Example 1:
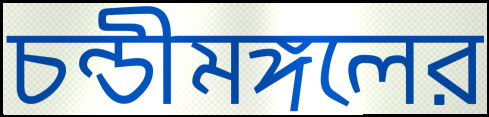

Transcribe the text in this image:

চন্ডীমঙ্গলের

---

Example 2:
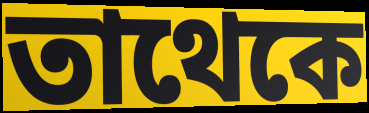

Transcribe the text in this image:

তাথেকে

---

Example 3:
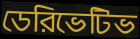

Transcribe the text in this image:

ডেরিভেটিভ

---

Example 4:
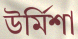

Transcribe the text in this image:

উর্মিশা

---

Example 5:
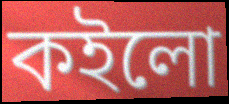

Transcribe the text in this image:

কইলো